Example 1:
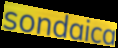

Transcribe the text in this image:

sondaica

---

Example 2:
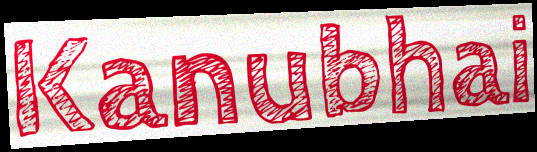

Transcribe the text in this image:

Kanubhai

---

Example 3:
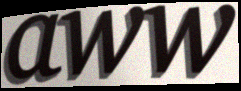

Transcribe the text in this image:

aww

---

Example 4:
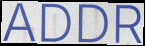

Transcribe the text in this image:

ADDR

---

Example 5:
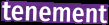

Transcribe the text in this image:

tenement